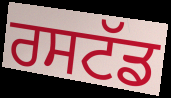
ਰਸਟੱਡ